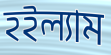
হইল্যাম